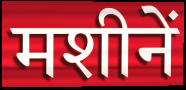
मशीनें